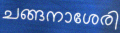
ചങ്ങനാശേരി